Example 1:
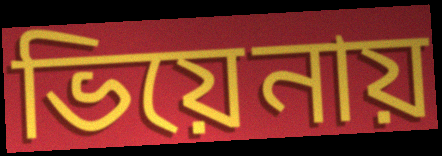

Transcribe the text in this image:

ভিয়েনায়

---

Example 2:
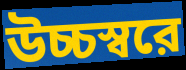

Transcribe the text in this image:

উচ্চস্বরে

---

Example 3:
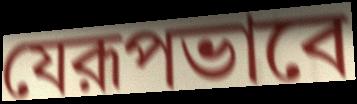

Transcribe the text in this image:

যেরূপভাবে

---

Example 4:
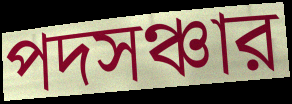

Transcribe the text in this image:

পদসঞ্চার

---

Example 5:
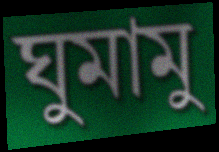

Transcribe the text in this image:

ঘুমামু